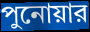
পুনোয়ার